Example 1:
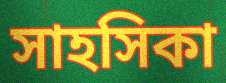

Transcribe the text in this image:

সাহসিকা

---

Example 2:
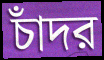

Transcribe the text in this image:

চাঁদর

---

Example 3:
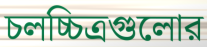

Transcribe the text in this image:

চলচ্চিত্রগুলোর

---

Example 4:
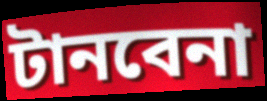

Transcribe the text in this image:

টানবেনা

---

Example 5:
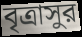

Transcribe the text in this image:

বৃত্রাসুর